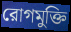
রোগমুক্তি